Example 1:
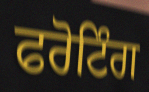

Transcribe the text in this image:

ਫਰੋਟਿੰਗ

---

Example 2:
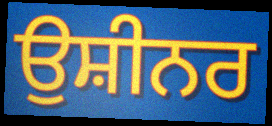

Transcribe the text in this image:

ਉਸ਼ੀਨਰ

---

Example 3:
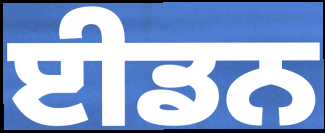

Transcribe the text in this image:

ਈਡਨ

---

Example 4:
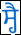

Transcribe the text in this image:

ਸ੍ਹੈ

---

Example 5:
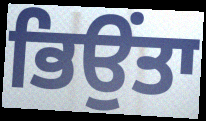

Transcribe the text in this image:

ਭਿਉਂਤਾ